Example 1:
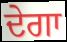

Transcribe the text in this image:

ਦੇਗਾ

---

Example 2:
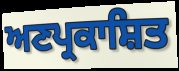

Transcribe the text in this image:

ਅਣਪ੍ਰਕਾਸ਼ਿਤ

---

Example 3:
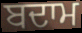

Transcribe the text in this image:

ਬਦਾਮ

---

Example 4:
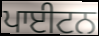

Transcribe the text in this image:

ਪਾਈਟਨ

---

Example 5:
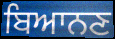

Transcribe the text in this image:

ਬਿਆਨਣ